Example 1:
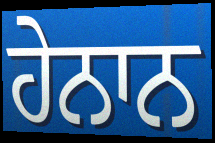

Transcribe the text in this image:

ਹੇਨਾਨ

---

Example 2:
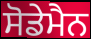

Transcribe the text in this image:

ਸੋਡੇਮੈਨ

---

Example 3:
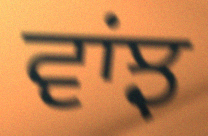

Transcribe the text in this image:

ਵਾਂਝ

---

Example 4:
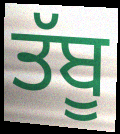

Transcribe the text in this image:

ਤੱਬੂ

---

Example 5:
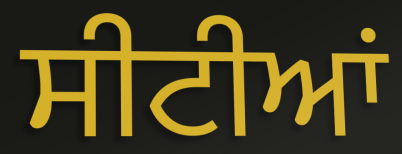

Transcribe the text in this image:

ਸੀਟੀਆਂ